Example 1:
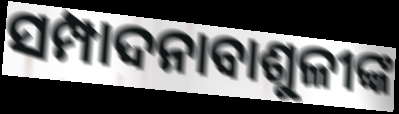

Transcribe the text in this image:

ସମ୍ପାଦନାବାଶୁଳୀଙ୍କ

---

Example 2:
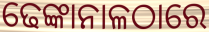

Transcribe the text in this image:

ଢେଙ୍କାନାଳଠାରେ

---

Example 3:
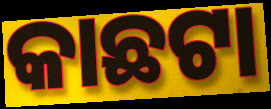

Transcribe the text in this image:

କାଛଟା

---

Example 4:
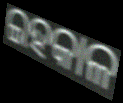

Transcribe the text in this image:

ଇହକାଳ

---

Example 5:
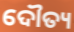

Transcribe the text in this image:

ଦୌତ୍ୟ